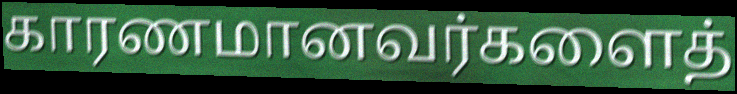
காரணமானவர்களைத்